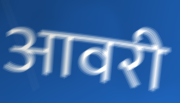
आवरी